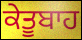
ਕੇਤੂਬਾਹ